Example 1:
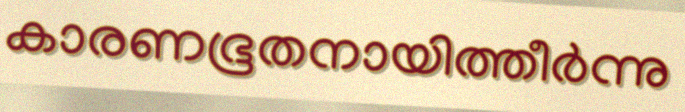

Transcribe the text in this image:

കാരണഭൂതനായിത്തീർന്നു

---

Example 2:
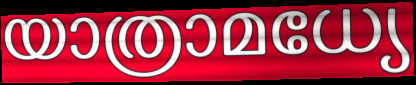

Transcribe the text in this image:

യാത്രാമധ്യേ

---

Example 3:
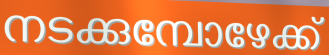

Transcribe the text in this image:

നടക്കുമ്പോഴേക്ക്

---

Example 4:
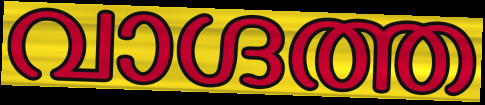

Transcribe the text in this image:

വാഗ്ദത്ത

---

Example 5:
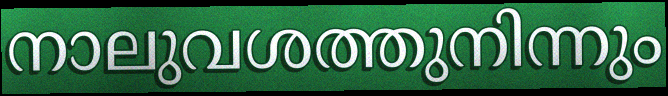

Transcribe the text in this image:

നാലുവശത്തുനിന്നും